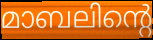
മാബലിന്റെ